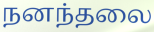
நனந்தலை